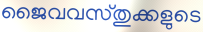
ജൈവവസ്തുക്കളുടെ